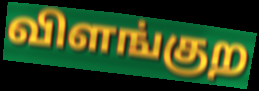
விளங்குற